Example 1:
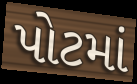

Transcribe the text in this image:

પોટમાં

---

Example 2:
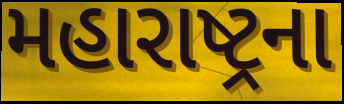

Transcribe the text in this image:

મહારાષ્ટ્રના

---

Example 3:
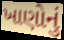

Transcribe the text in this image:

ખાણોનું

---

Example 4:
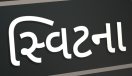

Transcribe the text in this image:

સ્વિટના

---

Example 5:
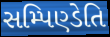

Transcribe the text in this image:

સમ્પિણ્ડેતિ